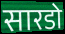
सारडो